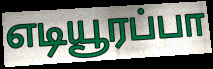
எடியூரப்பா